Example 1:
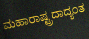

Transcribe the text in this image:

ಮಹಾರಾಷ್ಟ್ರದಾದ್ಯಂತ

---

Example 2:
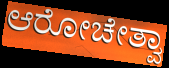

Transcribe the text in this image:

ಆರೋಚೇತ್ವಾ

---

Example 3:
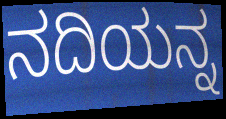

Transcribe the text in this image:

ನದಿಯನ್ನ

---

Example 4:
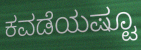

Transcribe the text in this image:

ಕವಡೆಯಷ್ಟೂ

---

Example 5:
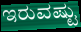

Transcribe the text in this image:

ಇರುವಷ್ಟು